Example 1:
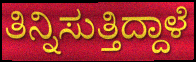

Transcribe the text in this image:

ತಿನ್ನಿಸುತ್ತಿದ್ದಾಳೆ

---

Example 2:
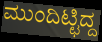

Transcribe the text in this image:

ಮುಂದಿಟ್ಟಿದ್ದ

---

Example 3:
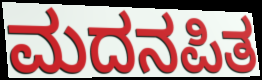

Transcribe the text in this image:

ಮದನಪಿತ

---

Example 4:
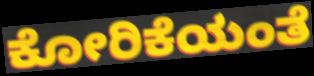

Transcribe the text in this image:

ಕೋರಿಕೆಯಂತೆ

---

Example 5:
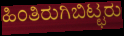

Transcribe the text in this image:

ಹಿಂತಿರುಗಿಬಿಟ್ಟರು